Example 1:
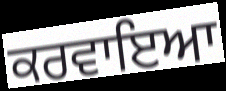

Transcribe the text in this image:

ਕਰਵਾਇਆ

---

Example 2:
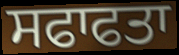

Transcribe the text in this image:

ਸਫਾਫਤਾ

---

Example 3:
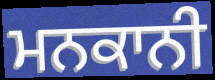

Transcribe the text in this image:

ਮਨਕਾਨੀ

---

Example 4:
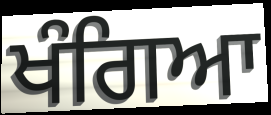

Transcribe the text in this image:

ਖੰਗਿਆ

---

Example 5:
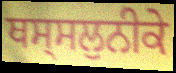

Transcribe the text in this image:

ਥਸ੍ਸਲੁਨੀਕੇ